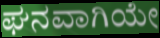
ಘನವಾಗಿಯೇ